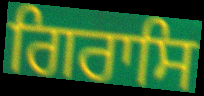
ਗਿਰਾਸਿ